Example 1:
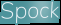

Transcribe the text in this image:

Spock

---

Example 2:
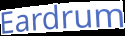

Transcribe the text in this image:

Eardrum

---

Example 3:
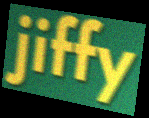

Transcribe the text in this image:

jiffy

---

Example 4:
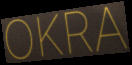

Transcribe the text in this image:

OKRA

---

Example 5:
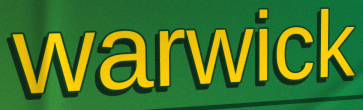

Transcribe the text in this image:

warwick